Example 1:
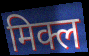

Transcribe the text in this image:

मिक्ल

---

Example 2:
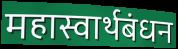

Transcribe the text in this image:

महास्वार्थबंधन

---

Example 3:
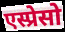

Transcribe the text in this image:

एस्प्रेसो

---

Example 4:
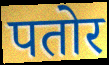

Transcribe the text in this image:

पतोर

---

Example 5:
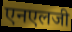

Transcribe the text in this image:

एनएलजी